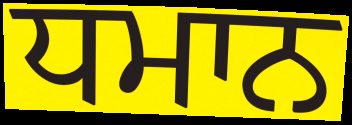
ਧਮਾਨ